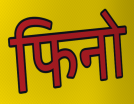
फिनो